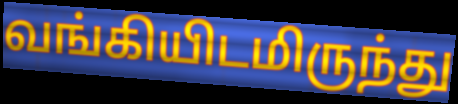
வங்கியிடமிருந்து